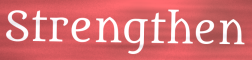
Strengthen